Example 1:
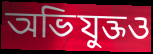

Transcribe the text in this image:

অভিযুক্তও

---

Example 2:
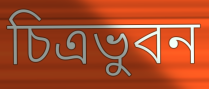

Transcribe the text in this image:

চিত্রভুবন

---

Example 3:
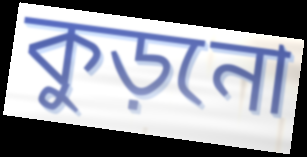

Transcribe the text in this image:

কুড়নো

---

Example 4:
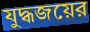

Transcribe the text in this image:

যুদ্ধজয়ের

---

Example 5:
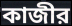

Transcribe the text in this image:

কাজীর